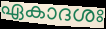
ഏകാദശഃ